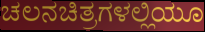
ಚಲನಚಿತ್ರಗಳಲ್ಲಿಯೂ